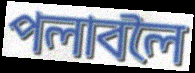
পলাবলৈ